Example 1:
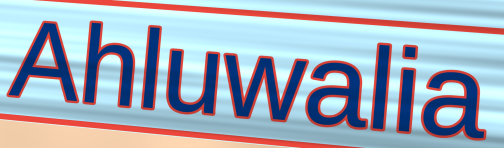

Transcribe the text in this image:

Ahluwalia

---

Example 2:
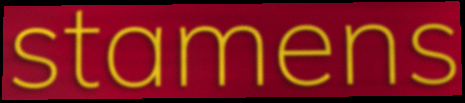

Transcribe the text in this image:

stamens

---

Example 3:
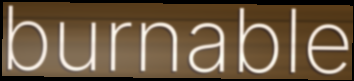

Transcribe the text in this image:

burnable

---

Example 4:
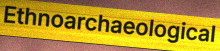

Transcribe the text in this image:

Ethnoarchaeological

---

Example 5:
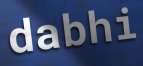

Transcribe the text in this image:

dabhi